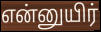
என்னுயிர்